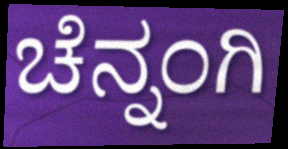
ಚೆನ್ನಂಗಿ